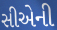
સીએની